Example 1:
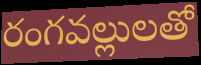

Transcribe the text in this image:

రంగవల్లులతో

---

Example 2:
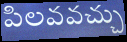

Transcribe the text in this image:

పిలవవచ్చు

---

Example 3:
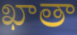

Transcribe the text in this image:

ఖాతా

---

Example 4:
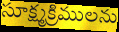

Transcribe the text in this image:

సూక్ష్మక్రిములను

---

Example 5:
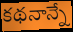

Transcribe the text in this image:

కథనాన్నే